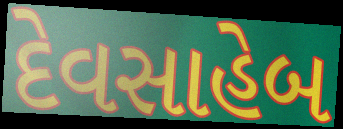
દેવસાહેબ